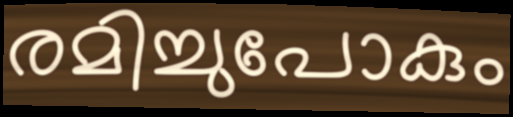
രമിച്ചുപോകും